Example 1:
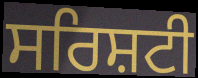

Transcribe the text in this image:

ਸਰਿਸ਼ਟੀ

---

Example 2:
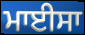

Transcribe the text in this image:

ਮਾਈਸਾ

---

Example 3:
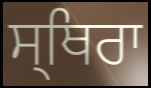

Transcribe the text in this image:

ਸ੍ਥਿਰਾ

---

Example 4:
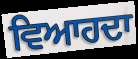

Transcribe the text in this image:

ਵਿਆਹਦਾ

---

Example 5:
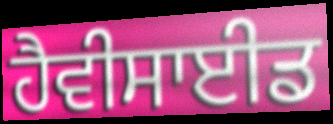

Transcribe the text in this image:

ਹੈਵੀਸਾਈਡ